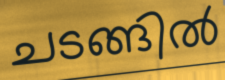
ചടങ്ങിൽ